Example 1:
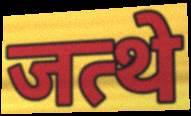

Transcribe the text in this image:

जत्थे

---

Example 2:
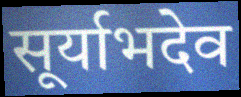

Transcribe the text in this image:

सूर्याभदेव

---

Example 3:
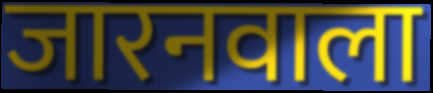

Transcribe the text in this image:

जारनवाला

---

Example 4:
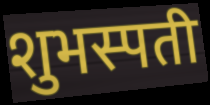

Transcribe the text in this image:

शुभस्पती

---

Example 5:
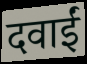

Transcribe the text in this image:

दवाईं